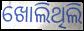
ଖୋଲିଥିଲି